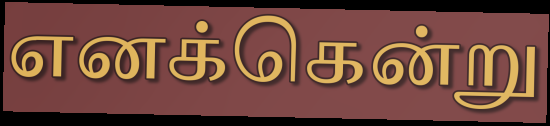
எனக்கென்று